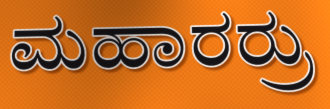
ಮಹಾರರ್ರು